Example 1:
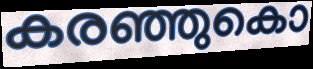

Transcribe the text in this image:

കരഞ്ഞുകൊ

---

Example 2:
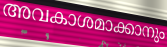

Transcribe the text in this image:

അവകാശമാക്കാനും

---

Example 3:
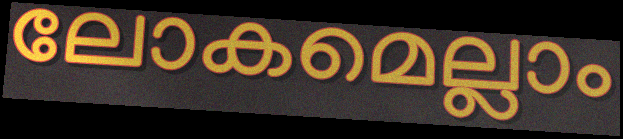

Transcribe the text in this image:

ലോകമെല്ലാം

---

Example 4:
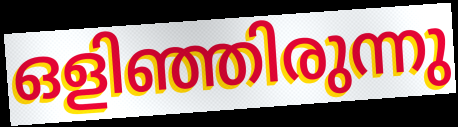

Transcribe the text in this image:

ഒളിഞ്ഞിരുന്നു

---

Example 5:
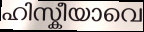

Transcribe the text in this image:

ഹിസ്കീയാവെ